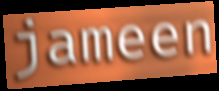
jameen